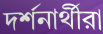
দর্শনার্থীরা